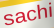
sachi